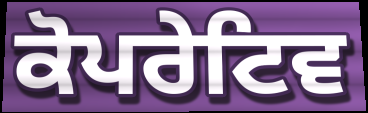
ਕੋਪਰੇਟਿਵ